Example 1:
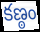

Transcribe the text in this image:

కణ్ఠం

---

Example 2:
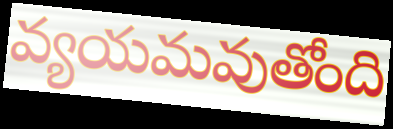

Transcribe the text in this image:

వ్యయమవుతోంది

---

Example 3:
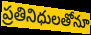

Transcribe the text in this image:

ప్రతినిధులతోనూ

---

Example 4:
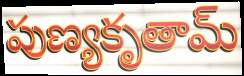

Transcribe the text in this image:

పుణ్యకృతామ్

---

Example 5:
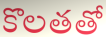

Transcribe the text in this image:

కొలతతో